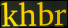
khbr